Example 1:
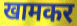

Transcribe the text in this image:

खामकर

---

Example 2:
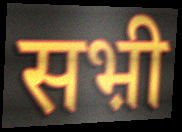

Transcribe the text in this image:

सभ़ी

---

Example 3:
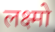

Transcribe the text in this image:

लक्ष्मो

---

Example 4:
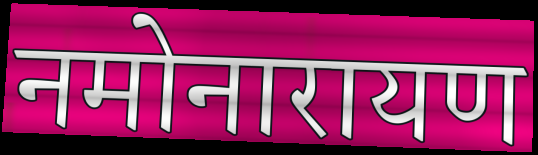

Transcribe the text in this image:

नमोनारायण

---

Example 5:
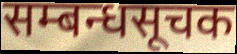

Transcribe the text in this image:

सम्बन्धसूचक